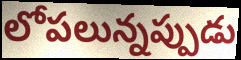
లోపలున్నప్పుడు